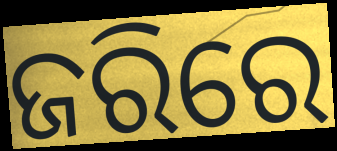
ଜରିରେ